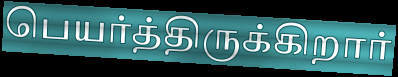
பெயர்த்திருக்கிறார்